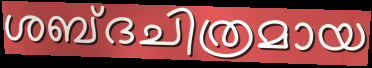
ശബ്ദചിത്രമായ